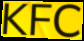
KFC